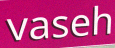
vaseh